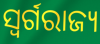
ସ୍ୱର୍ଗରାଜ୍ୟ